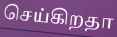
செய்கிறதா